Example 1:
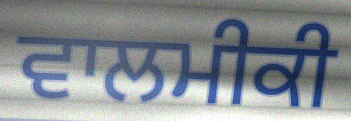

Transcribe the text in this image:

ਵਾਲਮੀਕੀ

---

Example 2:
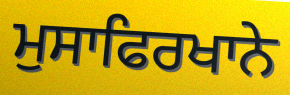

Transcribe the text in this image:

ਮੁਸਾਫਿਰਖਾਨੇ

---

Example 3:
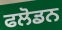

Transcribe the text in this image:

ਫਲੋਡਨ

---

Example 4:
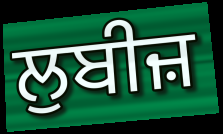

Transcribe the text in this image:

ਲੁਬੀਜ਼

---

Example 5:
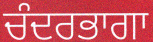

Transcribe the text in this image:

ਚੰਦਰਭਾਗਾ